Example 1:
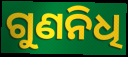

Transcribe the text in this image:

ଗୁଣନିଧି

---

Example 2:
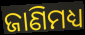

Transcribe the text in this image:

ଜାଣିମଧ୍ୟ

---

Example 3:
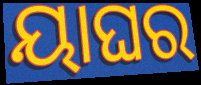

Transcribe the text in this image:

ୟାଘର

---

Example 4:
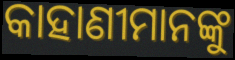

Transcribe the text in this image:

କାହାଣୀମାନଙ୍କୁ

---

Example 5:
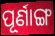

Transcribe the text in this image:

ପୂର୍ଣାଙ୍ଗ